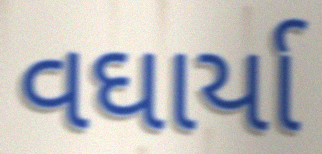
વઘાર્યા